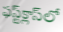
ఫస్ట్‌క్లాస్‌లో